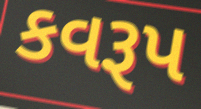
કવરૂપ